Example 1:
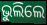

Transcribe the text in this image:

ଭୁଲିଲେ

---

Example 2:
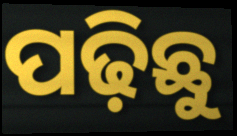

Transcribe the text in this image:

ପଢ଼ିଛୁ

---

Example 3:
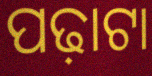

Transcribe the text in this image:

ପଢ଼ାଟା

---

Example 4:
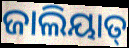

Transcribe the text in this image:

ଜାଲିୟାତ୍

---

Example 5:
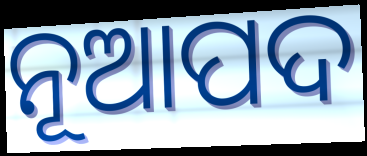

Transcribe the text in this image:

ନୂଆପଦ